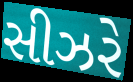
સીઝરે